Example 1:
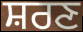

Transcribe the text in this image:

ਸ਼ਰਣ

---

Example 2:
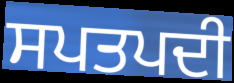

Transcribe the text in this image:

ਸਪਤਪਦੀ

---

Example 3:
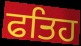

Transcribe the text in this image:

ਫਤਿਹ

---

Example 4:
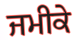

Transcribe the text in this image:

ਜਮੀਕੇ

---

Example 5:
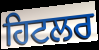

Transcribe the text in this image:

ਹਿਟਲਰ